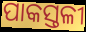
ପାକସ୍ତଳୀ